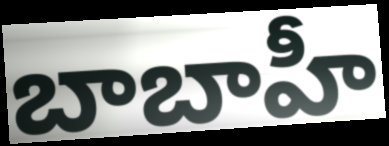
బాబాహీ